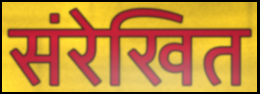
संरेखित